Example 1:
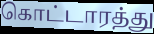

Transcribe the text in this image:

கொட்டாரத்து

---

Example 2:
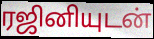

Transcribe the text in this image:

ரஜினியுடன்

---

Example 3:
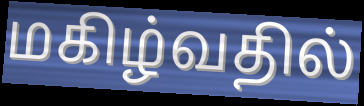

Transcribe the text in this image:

மகிழ்வதில்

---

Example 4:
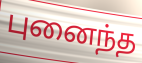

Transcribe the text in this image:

புனைந்த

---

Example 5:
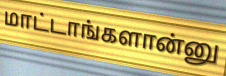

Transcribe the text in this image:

மாட்டாங்களான்னு